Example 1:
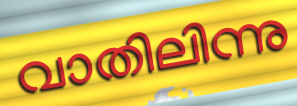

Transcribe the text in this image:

വാതിലിന്നു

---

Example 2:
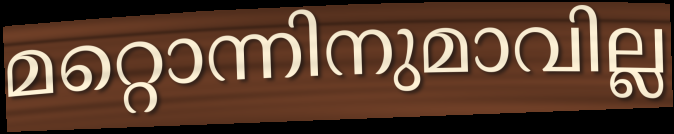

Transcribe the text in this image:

മറ്റൊന്നിനുമാവില്ല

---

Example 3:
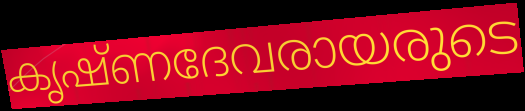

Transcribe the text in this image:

കൃഷ്ണദേവരായരുടെ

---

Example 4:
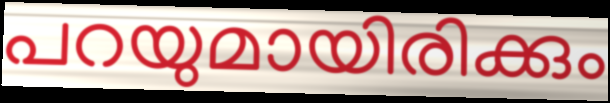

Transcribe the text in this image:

പറയുമായിരിക്കും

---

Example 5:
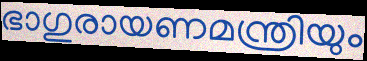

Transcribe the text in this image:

ഭാഗുരായണമന്ത്രിയും